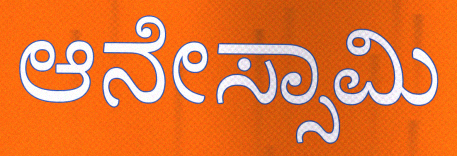
ಆನೇಸ್ಸಾಮಿ